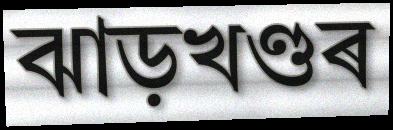
ঝাড়খণ্ডৰ